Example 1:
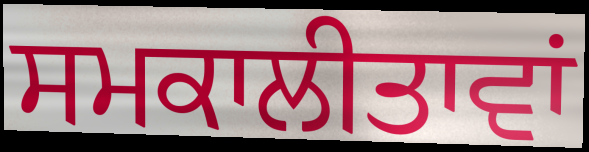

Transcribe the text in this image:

ਸਮਕਾਲੀਤਾਵਾਂ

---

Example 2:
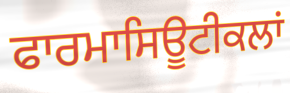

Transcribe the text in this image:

ਫਾਰਮਾਸਿਊਟੀਕਲਾਂ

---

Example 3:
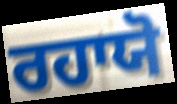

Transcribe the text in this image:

ਰਹਾਯੋ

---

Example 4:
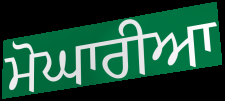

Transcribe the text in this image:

ਮੋਘਾਰੀਆ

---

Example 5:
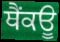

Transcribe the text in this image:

ਥੈਂਕਊ